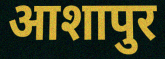
आशापुर